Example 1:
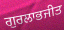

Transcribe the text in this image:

ਗੁਰਲਾਭਜੀਤ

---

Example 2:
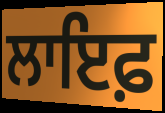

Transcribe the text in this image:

ਲਾਇਫ਼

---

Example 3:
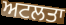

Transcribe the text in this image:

ਅਟਲਤਾ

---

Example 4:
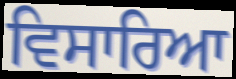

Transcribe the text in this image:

ਵਿਸਾਰਿਆ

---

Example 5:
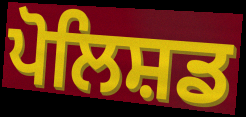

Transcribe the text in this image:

ਪੋਲਿਸ਼ਡ